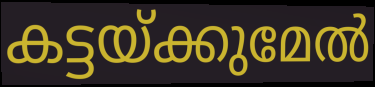
കട്ടയ്ക്കുമേൽ